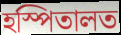
হস্পিতালত